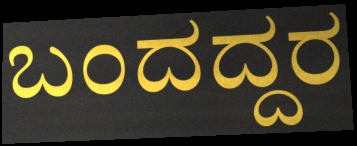
ಬಂದದ್ದರ